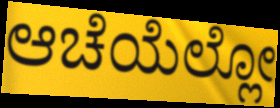
ಆಚೆಯೆಲ್ಲೋ